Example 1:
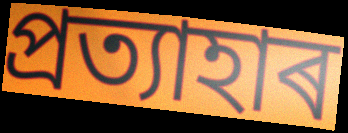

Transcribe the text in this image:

প্ৰত্যাহাৰ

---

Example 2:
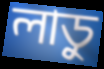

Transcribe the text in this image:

লাডু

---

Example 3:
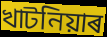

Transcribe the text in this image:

খাটনিয়াৰ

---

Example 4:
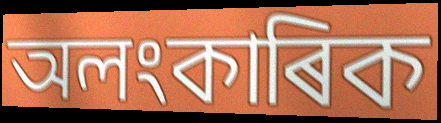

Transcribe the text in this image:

অলংকাৰিক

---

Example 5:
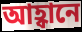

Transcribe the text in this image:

আহ্বানে